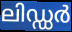
ലിഡ്ഡർ